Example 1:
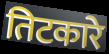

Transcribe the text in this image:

तिटकारे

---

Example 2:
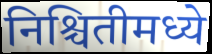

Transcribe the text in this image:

निश्चितीमध्ये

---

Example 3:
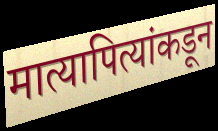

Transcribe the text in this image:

मात्यापित्यांकडून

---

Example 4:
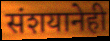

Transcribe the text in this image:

संशयानेही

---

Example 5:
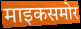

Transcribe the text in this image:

माइकसमोर